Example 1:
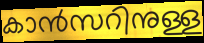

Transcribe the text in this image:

കാൻസറിനുള്ള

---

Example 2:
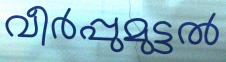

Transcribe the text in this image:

വീർപ്പുമുട്ടൽ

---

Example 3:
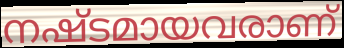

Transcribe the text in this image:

നഷ്ടമായവരാണ്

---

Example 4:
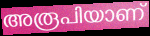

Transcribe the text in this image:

അരൂപിയാണ്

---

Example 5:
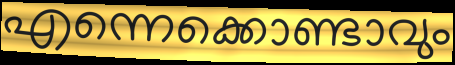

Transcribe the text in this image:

എന്നെക്കൊണ്ടാവും